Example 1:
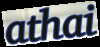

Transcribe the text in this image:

athai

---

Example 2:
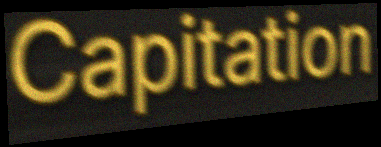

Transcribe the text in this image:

Capitation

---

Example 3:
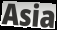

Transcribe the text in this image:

Asia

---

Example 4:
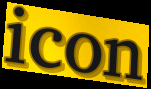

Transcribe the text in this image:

icon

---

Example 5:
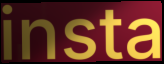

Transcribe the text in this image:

insta